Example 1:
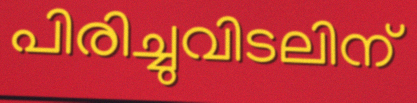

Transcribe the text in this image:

പിരിച്ചുവിടലിന്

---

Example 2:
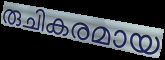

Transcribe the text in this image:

രുചികരമായ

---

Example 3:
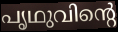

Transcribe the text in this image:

പൃഥുവിന്റെ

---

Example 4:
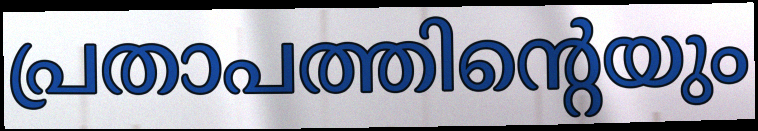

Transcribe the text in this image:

പ്രതാപത്തിന്റെയും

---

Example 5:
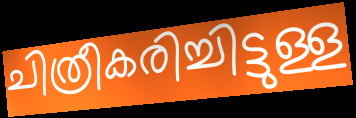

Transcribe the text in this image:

ചിത്രീകരിച്ചിട്ടുള്ള